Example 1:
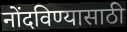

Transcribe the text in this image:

नोंदविण्यासाठी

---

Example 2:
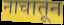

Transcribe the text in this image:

नाचातून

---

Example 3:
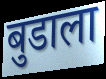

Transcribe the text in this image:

बुडाला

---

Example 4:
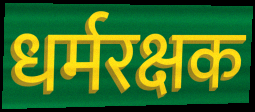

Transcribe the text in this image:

धर्मरक्षक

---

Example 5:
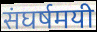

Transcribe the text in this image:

संघर्षमयी